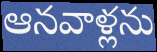
ఆనవాళ్లను